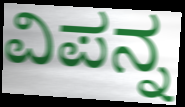
ವಿಪನ್ನ